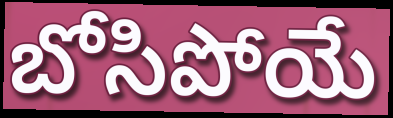
బోసిపోయే